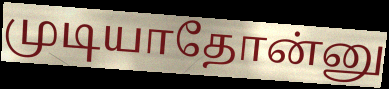
முடியாதோன்னு